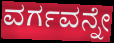
ವರ್ಗವನ್ನೇ